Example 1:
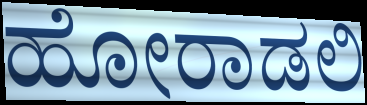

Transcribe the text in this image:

ಹೋರಾಡಲಿ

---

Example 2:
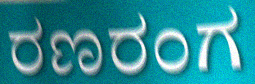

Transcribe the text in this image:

ರಣರಂಗ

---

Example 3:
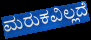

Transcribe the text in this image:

ಮರುಕವಿಲ್ಲದೆ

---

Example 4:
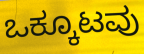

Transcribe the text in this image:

ಒಕ್ಕೂಟವು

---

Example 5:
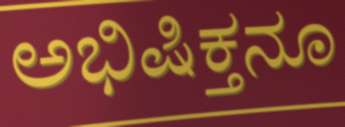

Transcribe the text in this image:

ಅಭಿಷಿಕ್ತನೂ